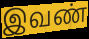
இவண்